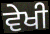
ਵੇਖੀ